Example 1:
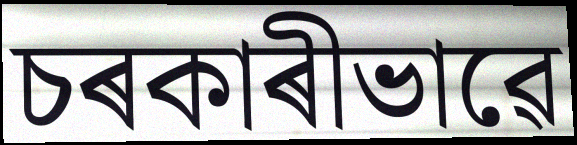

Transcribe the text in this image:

চৰকাৰীভাৱে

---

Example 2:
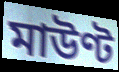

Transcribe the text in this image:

মাউণ্ট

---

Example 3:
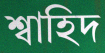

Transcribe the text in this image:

শ্বাহিদ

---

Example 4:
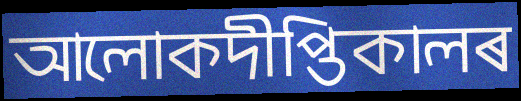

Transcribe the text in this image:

আলোকদীপ্তিকালৰ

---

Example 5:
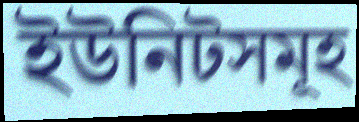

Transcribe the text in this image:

ইউনিটসমূহ